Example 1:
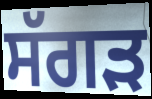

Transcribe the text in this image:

ਸੱਗੜ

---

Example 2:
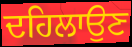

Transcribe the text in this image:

ਦਹਿਲਾਉਣ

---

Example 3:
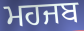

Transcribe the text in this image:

ਮਹਜਬ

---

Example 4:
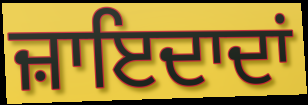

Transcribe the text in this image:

ਜ਼ਾਇਦਾਦਾਂ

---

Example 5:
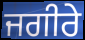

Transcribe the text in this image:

ਜਗੀਰੇ